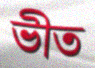
ভীত